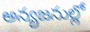
అన్యజనుల్లో